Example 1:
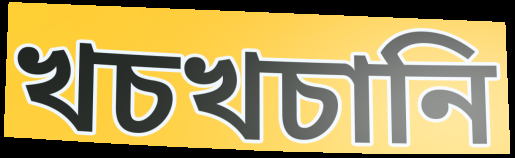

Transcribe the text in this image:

খচখচানি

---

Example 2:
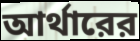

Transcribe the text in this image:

আর্থারের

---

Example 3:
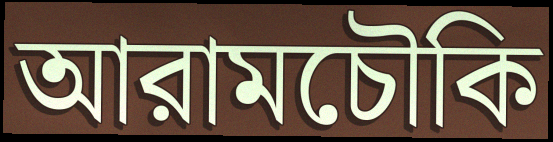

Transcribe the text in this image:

আরামচৌকি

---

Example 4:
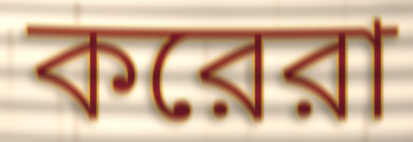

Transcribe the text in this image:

করেরা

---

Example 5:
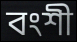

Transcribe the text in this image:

বংশী